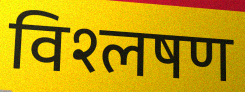
विश्लषण